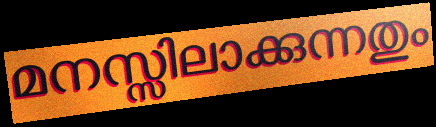
മനസ്സിലാക്കുന്നതും